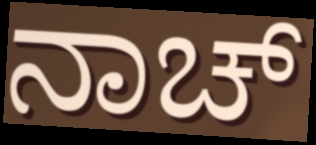
ನಾಚ್